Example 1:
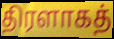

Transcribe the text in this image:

திரளாகத்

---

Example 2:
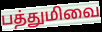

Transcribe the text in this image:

பத்துமிவை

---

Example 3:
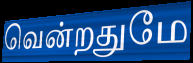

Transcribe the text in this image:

வென்றதுமே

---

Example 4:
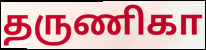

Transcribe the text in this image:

தருணிகா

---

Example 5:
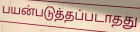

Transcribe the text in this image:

பயன்படுத்தப்படாதது